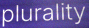
plurality